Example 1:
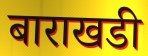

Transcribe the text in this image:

बाराखडी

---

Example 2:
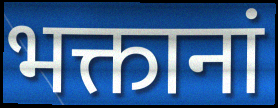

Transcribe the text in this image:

भक्तानां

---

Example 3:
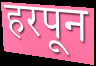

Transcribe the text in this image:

हरपून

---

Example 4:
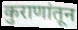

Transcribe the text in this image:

कुराणांतून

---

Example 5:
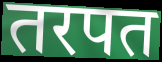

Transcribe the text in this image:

तरपत